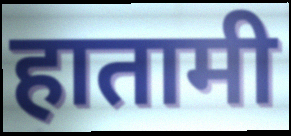
हातामी